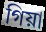
গিয়া